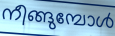
നീങ്ങുമ്പോൾ